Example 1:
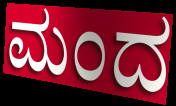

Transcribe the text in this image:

ಮಂದ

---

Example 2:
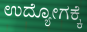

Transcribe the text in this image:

ಉದ್ಯೋಗಕ್ಕೆ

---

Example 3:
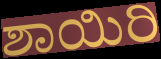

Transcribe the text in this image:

ಶಾಯಿರಿ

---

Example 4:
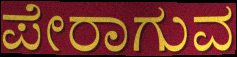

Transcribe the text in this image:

ಪೇರಾಗುವ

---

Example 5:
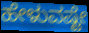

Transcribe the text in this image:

ಹೇಳುವಷ್ಟೇ